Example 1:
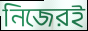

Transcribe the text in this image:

নিজেরই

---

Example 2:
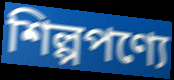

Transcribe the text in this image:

শিল্পপণ্যে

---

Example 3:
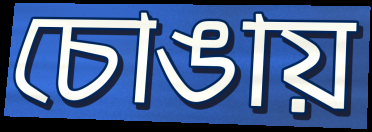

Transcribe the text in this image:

চোঙায়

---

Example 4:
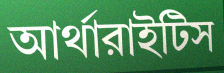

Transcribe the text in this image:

আর্থারাইটিস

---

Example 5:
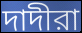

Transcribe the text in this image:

দাদীরা